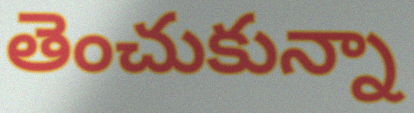
తెంచుకున్నా